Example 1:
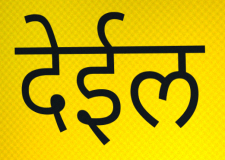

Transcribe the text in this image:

देईल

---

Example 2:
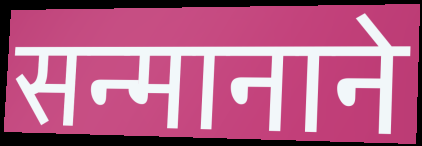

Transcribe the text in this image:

सन्मानाने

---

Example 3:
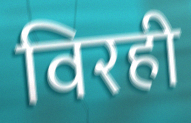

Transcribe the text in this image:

विरही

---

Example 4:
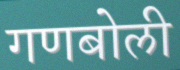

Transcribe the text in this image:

गणबोली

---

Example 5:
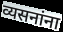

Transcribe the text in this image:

व्यसनांना